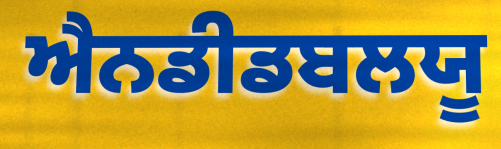
ਐਨਡੀਡਬਲਯੂ